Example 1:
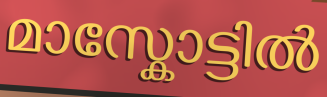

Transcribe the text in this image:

മാസ്കോട്ടിൽ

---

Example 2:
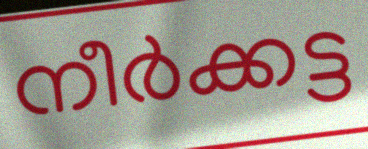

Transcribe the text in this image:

നീർക്കട്ട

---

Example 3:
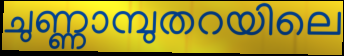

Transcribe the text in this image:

ചുണ്ണാമ്പുതറയിലെ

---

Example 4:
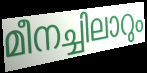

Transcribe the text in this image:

മീനച്ചിലാറും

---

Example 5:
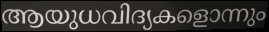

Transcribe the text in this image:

ആയുധവിദ്യകളൊന്നും